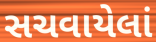
સચવાયેલાં